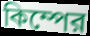
কিম্পের